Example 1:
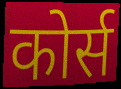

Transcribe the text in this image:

कोर्स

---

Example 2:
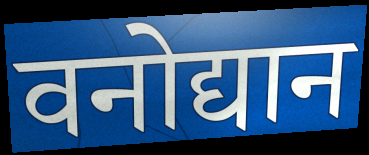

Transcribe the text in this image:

वनोद्यान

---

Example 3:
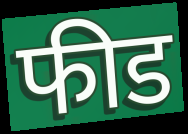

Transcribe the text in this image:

फीड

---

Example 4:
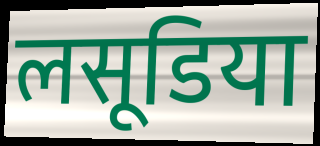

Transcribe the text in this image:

लसूडिया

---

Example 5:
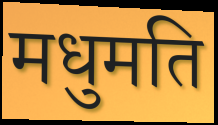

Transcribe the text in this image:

मधुमति